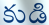
కుడి